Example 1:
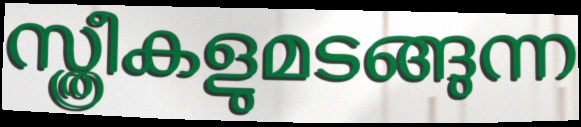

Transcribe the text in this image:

സ്ത്രീകളുമടങ്ങുന്ന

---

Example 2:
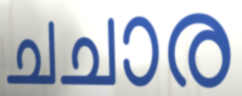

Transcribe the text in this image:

ചചാര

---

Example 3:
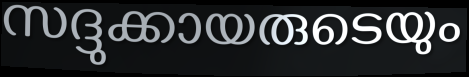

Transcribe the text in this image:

സദ്ദുക്കായരുടെയും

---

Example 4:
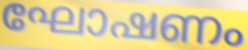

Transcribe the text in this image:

ഘോഷണം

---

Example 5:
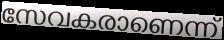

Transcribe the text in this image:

സേവകരാണെന്ന്